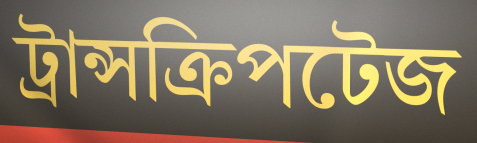
ট্রান্সক্রিপটেজ